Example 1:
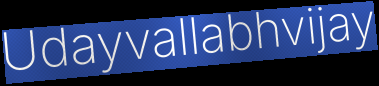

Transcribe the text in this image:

Udayvallabhvijay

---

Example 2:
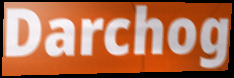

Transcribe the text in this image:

Darchog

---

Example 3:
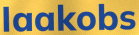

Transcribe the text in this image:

Iaakobs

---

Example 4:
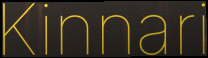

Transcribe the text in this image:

Kinnari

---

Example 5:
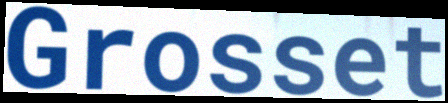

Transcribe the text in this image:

Grosset